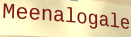
Meenalogale